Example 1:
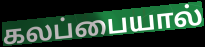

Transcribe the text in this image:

கலப்பையால்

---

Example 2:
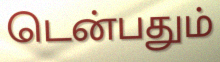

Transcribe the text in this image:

டென்பதும்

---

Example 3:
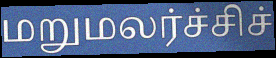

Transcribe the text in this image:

மறுமலர்ச்சிச்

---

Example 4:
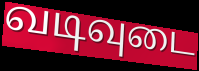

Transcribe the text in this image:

வடிவுடை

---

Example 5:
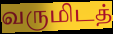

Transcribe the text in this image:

வருமிடத்